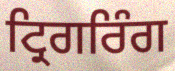
ਟ੍ਰਿਗਰਿੰਗ